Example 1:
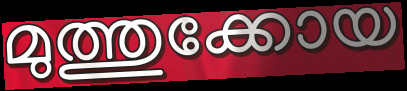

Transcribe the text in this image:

മുത്തുക്കോയ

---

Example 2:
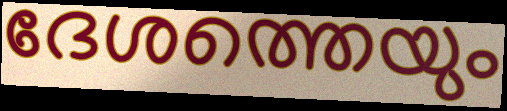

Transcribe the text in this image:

ദേശത്തെയും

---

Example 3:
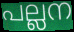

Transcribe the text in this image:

പല്ലന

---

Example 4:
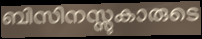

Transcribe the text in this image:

ബിസിനസ്സുകാരുടെ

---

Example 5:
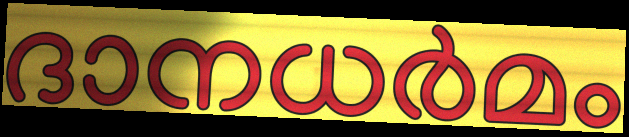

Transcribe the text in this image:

ദാനധർമം